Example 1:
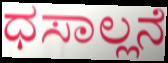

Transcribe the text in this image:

ಧಸಾಲ್ಲನೆ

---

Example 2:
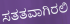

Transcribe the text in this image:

ಸತತವಾಗಿರಲಿ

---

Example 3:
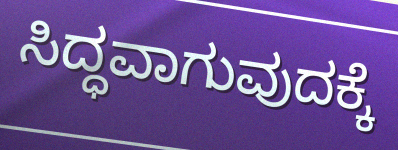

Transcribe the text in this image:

ಸಿದ್ಧವಾಗುವುದಕ್ಕೆ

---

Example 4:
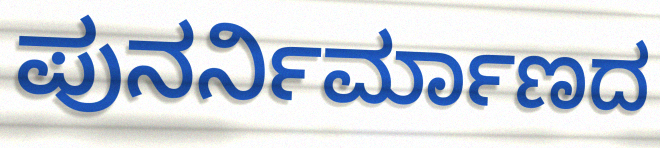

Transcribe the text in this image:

ಪುನರ್ನಿರ್ಮಾಣದ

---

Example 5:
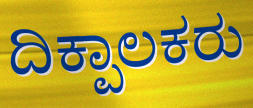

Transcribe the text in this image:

ದಿಕ್ಪಾಲಕರು